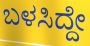
ಬಳಸಿದ್ದೇ